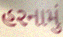
હરનામું